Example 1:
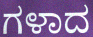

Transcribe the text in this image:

ಗಳಾದ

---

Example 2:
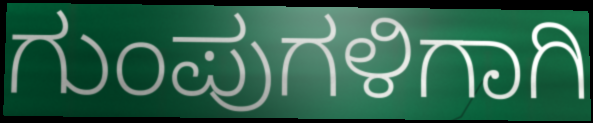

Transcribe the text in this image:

ಗುಂಪುಗಳಿಗಾಗಿ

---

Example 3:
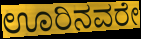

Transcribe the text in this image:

ಊರಿನವರೇ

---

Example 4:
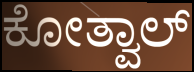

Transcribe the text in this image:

ಕೋತ್ವಾಲ್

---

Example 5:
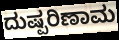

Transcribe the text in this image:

ದುಷ್ಪರಿಣಾಮ